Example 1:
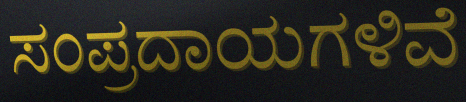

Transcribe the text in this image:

ಸಂಪ್ರದಾಯಗಳಿವೆ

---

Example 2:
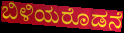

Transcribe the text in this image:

ಬಿಳಿಯರೊಡನೆ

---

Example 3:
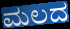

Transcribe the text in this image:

ಮಲದ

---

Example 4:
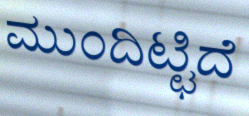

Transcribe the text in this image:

ಮುಂದಿಟ್ಟಿದೆ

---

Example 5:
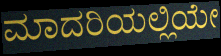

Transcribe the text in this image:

ಮಾದರಿಯಲ್ಲಿಯೇ